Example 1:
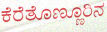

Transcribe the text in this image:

ಕೆರೆತೊಣ್ಣೂರಿನ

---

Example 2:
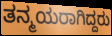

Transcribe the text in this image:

ತನ್ಮಯರಾಗಿದ್ದರು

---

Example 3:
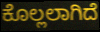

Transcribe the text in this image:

ಕೊಲ್ಲಲಾಗಿದೆ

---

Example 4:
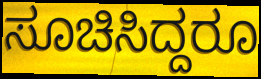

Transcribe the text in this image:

ಸೂಚಿಸಿದ್ದರೂ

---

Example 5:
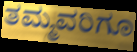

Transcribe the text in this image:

ತಮ್ಮವರಿಗೂ